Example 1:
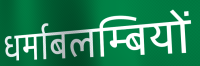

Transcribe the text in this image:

धर्माबलम्बियों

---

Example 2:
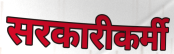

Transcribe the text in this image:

सरकारीकर्मी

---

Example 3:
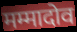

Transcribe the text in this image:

मम्मादोव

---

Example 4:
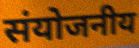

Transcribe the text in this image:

संयोजनीय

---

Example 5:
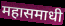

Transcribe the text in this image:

महासमाधी